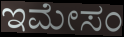
ಇಮೇಸಂ